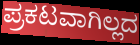
ಪ್ರಕಟವಾಗಿಲ್ಲದ